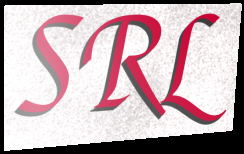
SRL